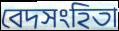
বেদসংহিতা